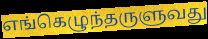
எங்கெழுந்தருளுவது